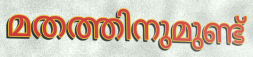
മതത്തിനുമുണ്ട്